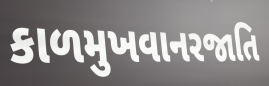
કાળમુખવાનરજાતિ